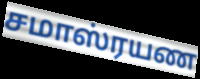
சமாஸ்ரயண